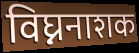
विघ्ननाशक